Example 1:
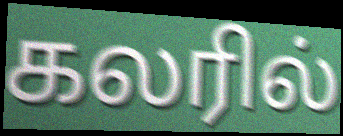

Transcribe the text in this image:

கலரில்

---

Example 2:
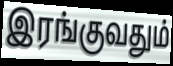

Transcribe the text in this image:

இரங்குவதும்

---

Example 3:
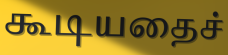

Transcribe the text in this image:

கூடியதைச்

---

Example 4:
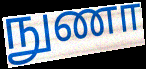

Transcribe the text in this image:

நுணா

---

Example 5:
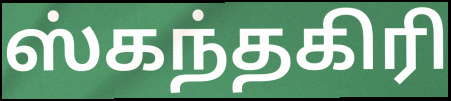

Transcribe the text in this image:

ஸ்கந்தகிரி